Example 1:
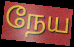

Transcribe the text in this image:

நேய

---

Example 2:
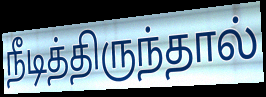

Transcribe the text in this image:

நீடித்திருந்தால்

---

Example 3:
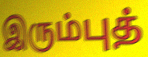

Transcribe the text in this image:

இரும்புத்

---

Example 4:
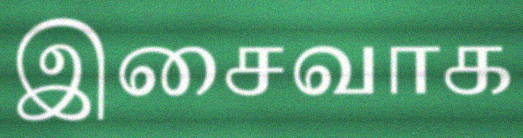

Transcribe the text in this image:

இசைவாக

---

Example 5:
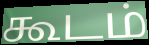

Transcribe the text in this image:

கூடம்